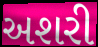
અશરી